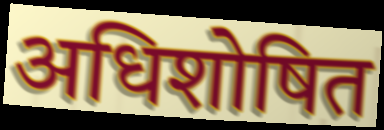
अधिशोषित